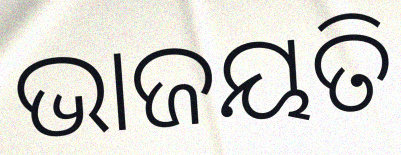
ଭାଜୟତି